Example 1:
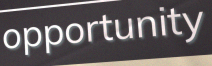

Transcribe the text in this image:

opportunity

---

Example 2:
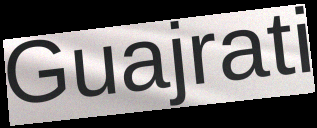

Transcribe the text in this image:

Guajrati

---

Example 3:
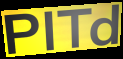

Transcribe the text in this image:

PITd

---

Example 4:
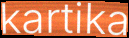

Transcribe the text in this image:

kartika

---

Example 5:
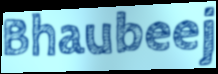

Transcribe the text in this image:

Bhaubeej